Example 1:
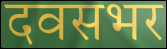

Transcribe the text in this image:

दवसभर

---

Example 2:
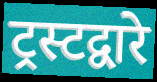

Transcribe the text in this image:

ट्रस्टद्वारे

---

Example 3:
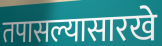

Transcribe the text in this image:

तपासल्यासारखे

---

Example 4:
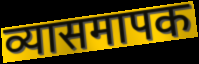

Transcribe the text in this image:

व्यासमापक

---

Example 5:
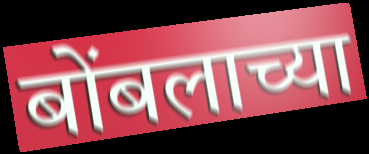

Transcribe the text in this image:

बोंबलाच्या